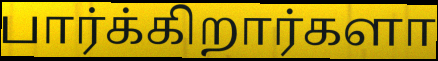
பார்க்கிறார்களா